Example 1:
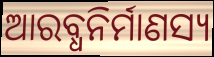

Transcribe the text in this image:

ଆରବ୍ଧନିର୍ମାଣସ୍ୟ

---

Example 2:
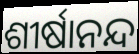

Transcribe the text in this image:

ଶୀର୍ଷାନନ୍ଦ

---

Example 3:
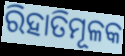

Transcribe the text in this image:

ରିହାତିମୂଳକ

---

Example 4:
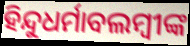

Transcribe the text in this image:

ହିନ୍ଦୁଧର୍ମାବଲମ୍ବୀଙ୍କ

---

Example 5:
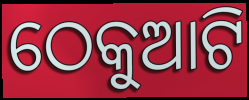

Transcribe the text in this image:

ଠେକୁଆଟି